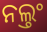
ନଲ୍ତଂ